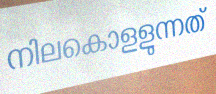
നിലകൊളളുന്നത്